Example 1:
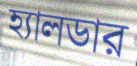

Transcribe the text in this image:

হ্যালডার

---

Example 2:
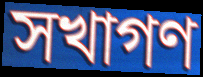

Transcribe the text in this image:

সখাগণ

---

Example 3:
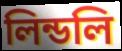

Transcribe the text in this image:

লিন্ডলি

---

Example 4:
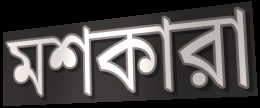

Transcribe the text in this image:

মশকারা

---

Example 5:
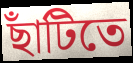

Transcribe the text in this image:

ছাঁটিতে